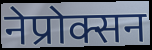
नेप्रोक्सन